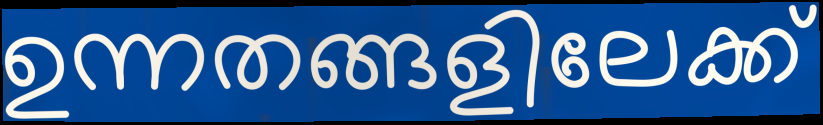
ഉന്നതങ്ങളിലേക്ക്